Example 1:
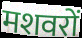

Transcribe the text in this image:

मशवरों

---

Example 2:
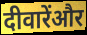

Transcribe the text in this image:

दीवारेंऔर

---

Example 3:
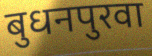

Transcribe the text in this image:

बुधनपुरवा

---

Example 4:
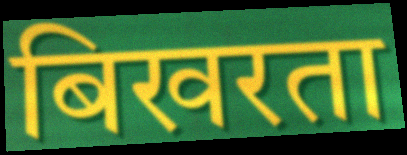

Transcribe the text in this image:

बिखरता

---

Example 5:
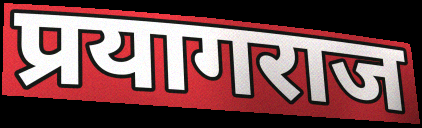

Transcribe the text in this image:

प्रयागराज